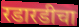
रडारडीचा